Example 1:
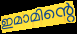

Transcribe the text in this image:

ഇമാമിന്റെ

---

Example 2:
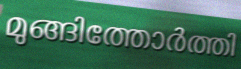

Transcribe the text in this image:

മുങ്ങിത്തോർത്തി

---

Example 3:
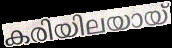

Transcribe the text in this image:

കരിയിലയായ്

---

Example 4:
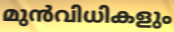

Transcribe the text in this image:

മുൻവിധികളും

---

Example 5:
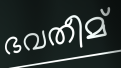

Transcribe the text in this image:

ഭവതീമ്